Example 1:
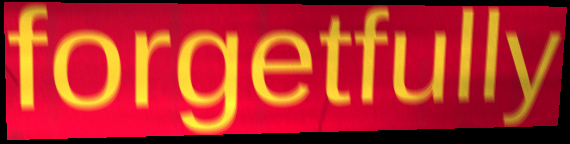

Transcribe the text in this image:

forgetfully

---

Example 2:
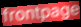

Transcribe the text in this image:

frontpage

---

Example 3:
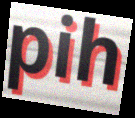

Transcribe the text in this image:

pih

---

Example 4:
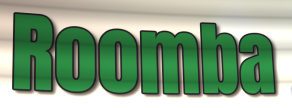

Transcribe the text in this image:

Roomba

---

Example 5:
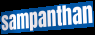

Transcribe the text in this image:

sampanthan